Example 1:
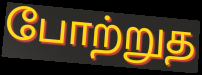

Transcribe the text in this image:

போற்றுத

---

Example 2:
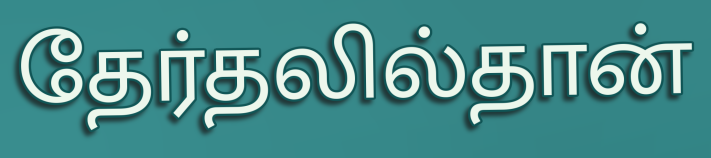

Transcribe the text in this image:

தேர்தலில்தான்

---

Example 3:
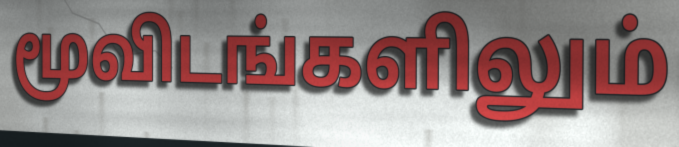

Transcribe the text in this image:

மூவிடங்களிலும்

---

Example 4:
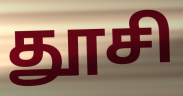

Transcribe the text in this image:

தூசி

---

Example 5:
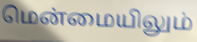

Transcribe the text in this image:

மென்மையிலும்